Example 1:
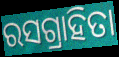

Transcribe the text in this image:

ରସଗ୍ରାହିତା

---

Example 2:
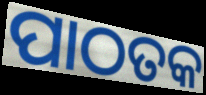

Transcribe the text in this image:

ପାଠତକ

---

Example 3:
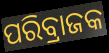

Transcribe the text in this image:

ପରିବ୍ରାଜକ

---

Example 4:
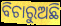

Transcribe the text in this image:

ବିଚାରୁଅଛି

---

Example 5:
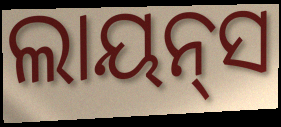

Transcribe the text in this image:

ଲାୟନ୍‌ସ